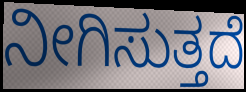
ನೀಗಿಸುತ್ತದೆ